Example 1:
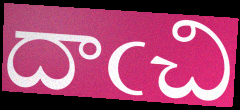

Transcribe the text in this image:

దాఁచి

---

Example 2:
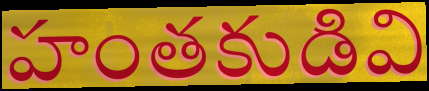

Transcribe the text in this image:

హంతకుడివి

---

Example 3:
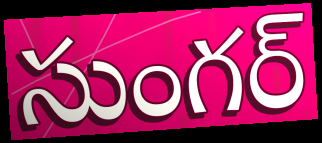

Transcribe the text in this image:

సుంగర్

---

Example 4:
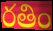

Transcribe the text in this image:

రతిం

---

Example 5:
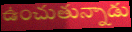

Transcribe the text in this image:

ఉంచుతున్నాడు